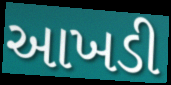
આખડી